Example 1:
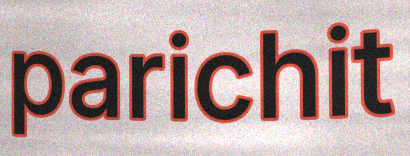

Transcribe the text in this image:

parichit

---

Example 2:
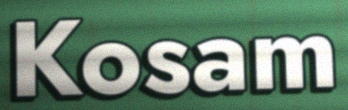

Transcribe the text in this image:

Kosam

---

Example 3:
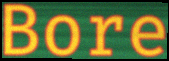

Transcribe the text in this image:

Bore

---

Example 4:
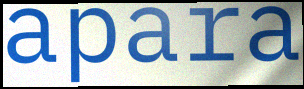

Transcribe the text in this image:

apara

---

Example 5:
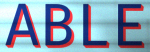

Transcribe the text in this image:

ABLE